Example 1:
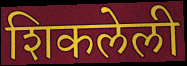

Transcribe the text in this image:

शिकलेली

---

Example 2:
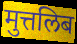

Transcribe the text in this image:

मुत्तलिब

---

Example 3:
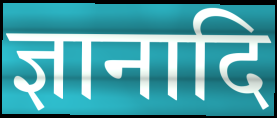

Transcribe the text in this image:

ज्ञानादि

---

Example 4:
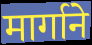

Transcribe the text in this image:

मार्गाने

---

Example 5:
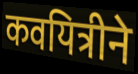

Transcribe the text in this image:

कवयित्रीने